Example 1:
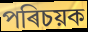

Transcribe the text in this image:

পৰিচয়ক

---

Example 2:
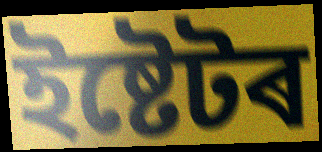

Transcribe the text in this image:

ইষ্টেটৰ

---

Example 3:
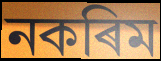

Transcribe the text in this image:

নকৰিম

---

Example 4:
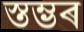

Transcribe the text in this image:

স্তম্ভৰ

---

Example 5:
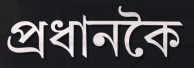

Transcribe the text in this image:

প্ৰধানকৈ